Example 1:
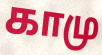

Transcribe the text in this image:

காமு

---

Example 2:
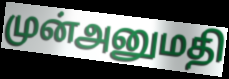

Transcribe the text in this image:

முன்அனுமதி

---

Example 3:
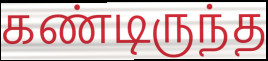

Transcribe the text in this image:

கண்டிருந்த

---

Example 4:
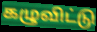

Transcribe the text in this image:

கழுவிட்டு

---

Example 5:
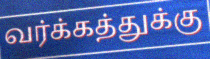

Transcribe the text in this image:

வர்க்கத்துக்கு